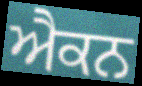
ਐਕਨ